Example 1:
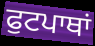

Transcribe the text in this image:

ਫੁਟਪਾਥਾਂ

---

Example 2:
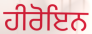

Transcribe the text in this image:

ਹੀਰੋਇਨ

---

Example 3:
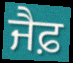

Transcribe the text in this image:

ਜੈਫ਼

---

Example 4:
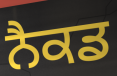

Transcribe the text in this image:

ਨੈਕਡ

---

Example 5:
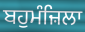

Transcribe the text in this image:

ਬਹੁਮੰਜ਼ਿਲਾ